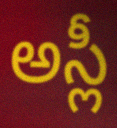
అస్లీ